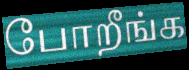
போறீங்க